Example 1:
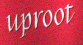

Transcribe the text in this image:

uproot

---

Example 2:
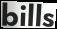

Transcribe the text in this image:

bills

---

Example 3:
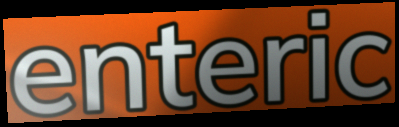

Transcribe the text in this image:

enteric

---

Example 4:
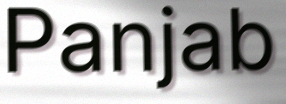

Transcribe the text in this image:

Panjab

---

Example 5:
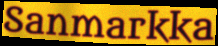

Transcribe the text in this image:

Sanmarkka